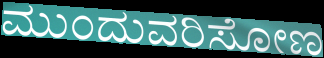
ಮುಂದುವರಿಸೋಣ